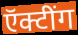
ऍक्टींग